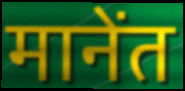
मानेंत